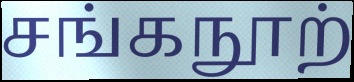
சங்கநூற்